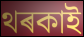
থৰকাই